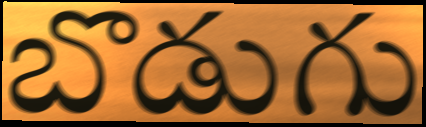
బొడుగు